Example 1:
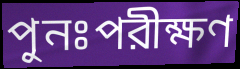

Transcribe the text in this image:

পুনঃপরীক্ষণ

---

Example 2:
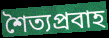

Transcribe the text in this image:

শৈত্যপ্রবাহ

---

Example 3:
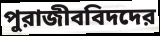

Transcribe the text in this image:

পুরাজীববিদদের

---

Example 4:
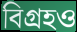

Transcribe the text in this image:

বিগ্রহও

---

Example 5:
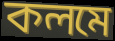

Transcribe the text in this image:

কলমে